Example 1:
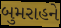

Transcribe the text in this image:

બુમરાહને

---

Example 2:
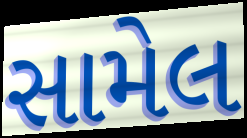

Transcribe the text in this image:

સામેલ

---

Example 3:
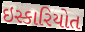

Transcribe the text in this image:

ઇસ્કારિયોત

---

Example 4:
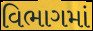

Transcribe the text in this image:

વિભાગમાં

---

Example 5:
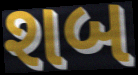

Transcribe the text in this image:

શબ